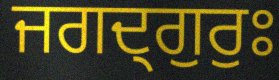
ਜਗਦ੍ਗੁਰੁਃ